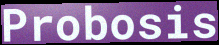
Probosis